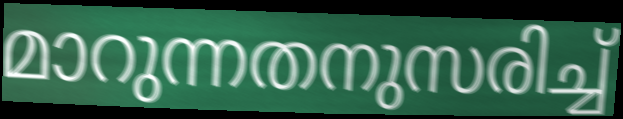
മാറുന്നതനുസരിച്ച്